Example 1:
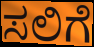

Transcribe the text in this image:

ಸಲಿಗೆ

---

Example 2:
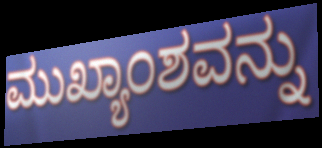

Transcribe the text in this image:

ಮುಖ್ಯಾಂಶವನ್ನು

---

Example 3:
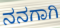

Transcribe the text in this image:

ನನಗಾಗಿ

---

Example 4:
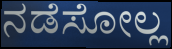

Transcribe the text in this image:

ನಡೆಸೋಲ್ಲ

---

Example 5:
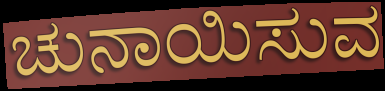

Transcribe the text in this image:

ಚುನಾಯಿಸುವ